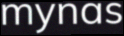
mynas